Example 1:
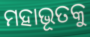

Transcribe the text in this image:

ମହାଭୂତକୁ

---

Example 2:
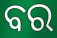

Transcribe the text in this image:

ବର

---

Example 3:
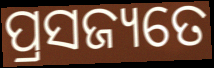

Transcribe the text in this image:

ପ୍ରସଜ୍ୟତେ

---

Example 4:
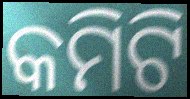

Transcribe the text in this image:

କମିଟି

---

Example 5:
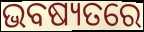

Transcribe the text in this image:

ଭବଷ୍ୟତରେ